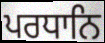
ਪਰਧਾਨਿ